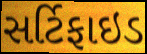
સર્ટિફાઇડ